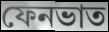
ফেনভাত